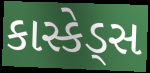
કાસ્કેડ્સ